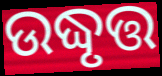
ଉଦ୍ଧୃତ୍ତ